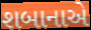
શબાનાએ